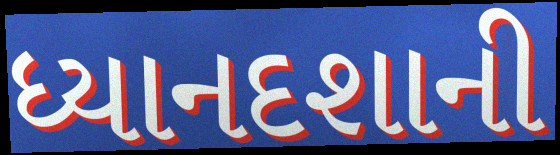
ધ્યાનદશાની